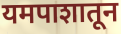
यमपाशातून